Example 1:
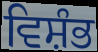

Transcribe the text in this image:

ਵਿਸ਼ੰਭ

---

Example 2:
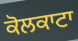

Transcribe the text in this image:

ਕੋਲਕਾਟਾ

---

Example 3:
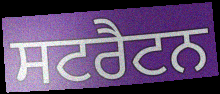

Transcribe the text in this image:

ਸਟਰੈਟਨ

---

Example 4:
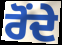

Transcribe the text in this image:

ਰੋਂਦੇ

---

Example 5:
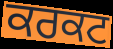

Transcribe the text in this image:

ਕਰਕਟ